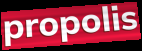
propolis